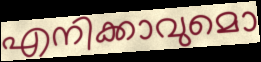
എനിക്കാവുമൊ